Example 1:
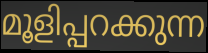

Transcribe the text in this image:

മൂളിപ്പറക്കുന്ന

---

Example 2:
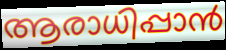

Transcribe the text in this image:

ആരാധിപ്പാൻ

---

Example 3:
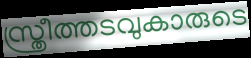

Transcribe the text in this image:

സ്ത്രീത്തടവുകാരുടെ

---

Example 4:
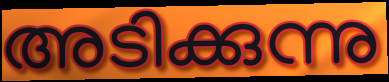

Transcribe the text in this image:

അടിക്കുന്നു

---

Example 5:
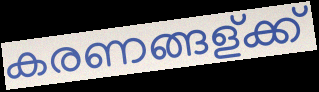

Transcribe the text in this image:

കരണങ്ങള്ക്ക്